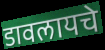
डावलायचे